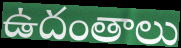
ఉదంతాలు